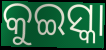
କୁଇସ୍କା